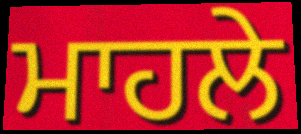
ਮਾਹਲੇ